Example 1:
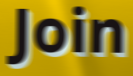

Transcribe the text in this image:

Join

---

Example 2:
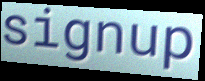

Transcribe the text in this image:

signup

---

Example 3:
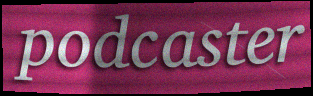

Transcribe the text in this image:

podcaster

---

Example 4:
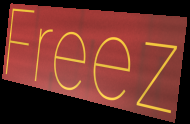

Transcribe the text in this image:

Freez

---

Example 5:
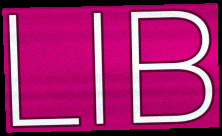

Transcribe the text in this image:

LIB